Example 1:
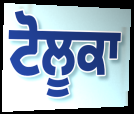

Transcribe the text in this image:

ਟੋਲੂਕਾ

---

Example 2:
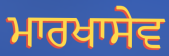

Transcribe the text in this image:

ਮਾਰਖਾਸੇਵ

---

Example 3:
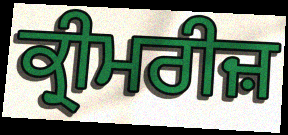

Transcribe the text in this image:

ਕ੍ਰੀਮਰੀਜ਼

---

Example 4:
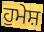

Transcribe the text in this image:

ਹੁਮੇਸ਼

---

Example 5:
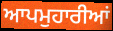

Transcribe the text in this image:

ਆਪਮੁਹਾਰੀਆਂ